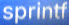
sprintf